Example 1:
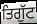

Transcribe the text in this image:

ਤਿਗੁੱਟ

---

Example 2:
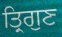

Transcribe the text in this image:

ਤ੍ਰਿਗੁਣ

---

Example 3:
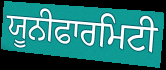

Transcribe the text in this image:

ਯੂਨੀਫਾਰਮਿਟੀ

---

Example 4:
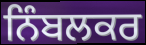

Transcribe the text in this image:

ਨਿੰਬਲਕਰ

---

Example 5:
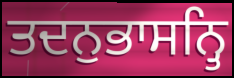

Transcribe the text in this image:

ਤਦਨੁਭਾਸਨ੍ਤਿ